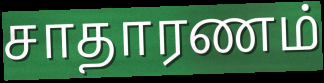
சாதாரணம்